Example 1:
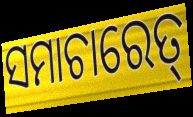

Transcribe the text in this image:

ସମାଚାରେତ୍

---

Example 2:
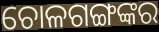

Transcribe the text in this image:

ଚୋଳଗଙ୍ଗଙ୍କର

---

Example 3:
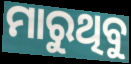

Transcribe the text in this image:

ମାରୁଥିବୁ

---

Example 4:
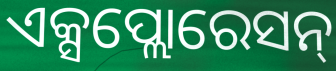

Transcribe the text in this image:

ଏକ୍ସପ୍ଲୋରେସନ୍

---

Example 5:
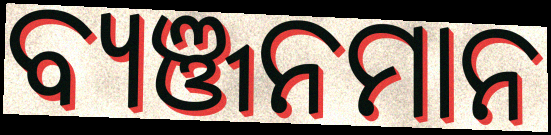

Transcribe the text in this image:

ବ୍ୟଞ୍ଜନମାନ